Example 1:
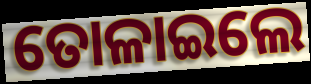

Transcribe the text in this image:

ତୋଳାଇଲେ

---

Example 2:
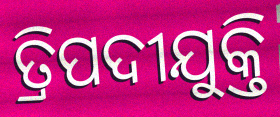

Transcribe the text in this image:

ତ୍ରିପଦୀଯୁକ୍ତି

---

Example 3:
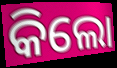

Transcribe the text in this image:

କିଲୋ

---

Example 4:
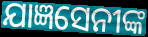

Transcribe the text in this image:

ଯାଜ୍ଞସେନୀଙ୍କ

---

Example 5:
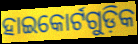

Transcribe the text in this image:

ହାଇକୋର୍ଟଗୁଡ଼ିକ